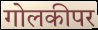
गोलकीपर